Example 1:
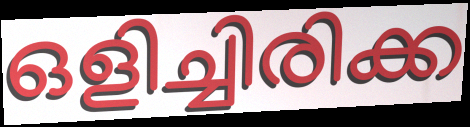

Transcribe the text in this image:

ഒളിച്ചിരിക്ക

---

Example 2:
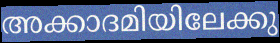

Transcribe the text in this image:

അക്കാദമിയിലേക്കു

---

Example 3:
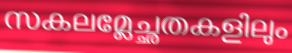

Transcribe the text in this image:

സകലമ്ലേച്ഛതകളിലും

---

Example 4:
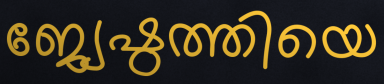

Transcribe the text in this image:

ജ്യേഷ്ഠത്തിയെ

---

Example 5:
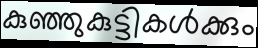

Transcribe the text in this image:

കുഞ്ഞുകുട്ടികൾക്കും